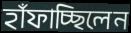
হাঁফাচ্ছিলেন